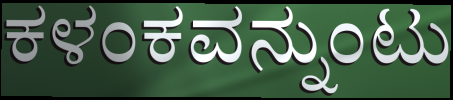
ಕಳಂಕವನ್ನುಂಟು